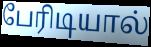
பேரிடியால்